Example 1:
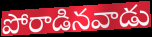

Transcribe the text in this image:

పోరాడినవాడు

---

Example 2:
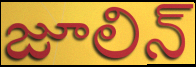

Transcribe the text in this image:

జూలిన్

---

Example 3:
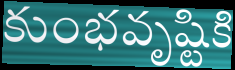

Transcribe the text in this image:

కుంభవృష్టికి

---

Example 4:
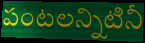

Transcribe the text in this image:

పంటలన్నిటినీ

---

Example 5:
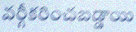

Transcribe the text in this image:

వర్గీకరించబడ్డాయి